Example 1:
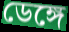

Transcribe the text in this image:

ডেঙ্গে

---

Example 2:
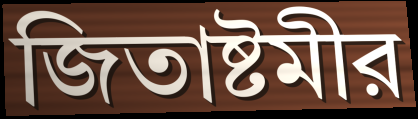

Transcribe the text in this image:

জিতাষ্টমীর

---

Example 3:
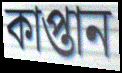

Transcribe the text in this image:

কাপ্তান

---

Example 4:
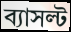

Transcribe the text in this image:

ব্যাসল্ট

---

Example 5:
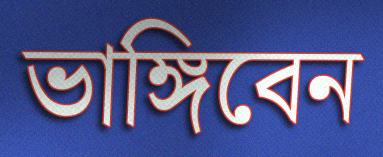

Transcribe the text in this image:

ভাঙ্গিবেন